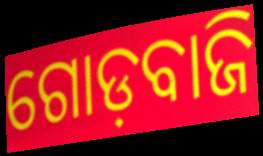
ଗୋଡ଼ବାଜି